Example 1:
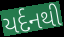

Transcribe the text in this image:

યર્દનથી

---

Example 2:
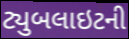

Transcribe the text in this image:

ટ્યુબલાઇટની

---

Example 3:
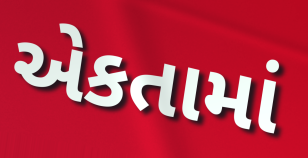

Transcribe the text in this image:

એકતામાં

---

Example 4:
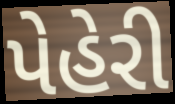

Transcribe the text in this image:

પેહેરી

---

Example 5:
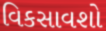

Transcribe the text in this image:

વિકસાવશો